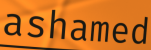
ashamed